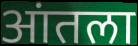
आंतला